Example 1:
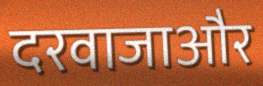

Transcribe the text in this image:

दरवाजाऔर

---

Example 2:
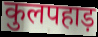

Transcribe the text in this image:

कुलपहाड़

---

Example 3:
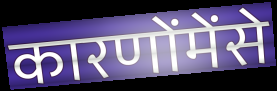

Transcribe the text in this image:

कारणोंमेंसे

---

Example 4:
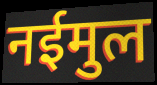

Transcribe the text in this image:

नईमुल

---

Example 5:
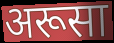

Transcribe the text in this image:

अरूसा